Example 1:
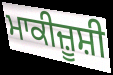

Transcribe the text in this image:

ਮਾਕੀਜ਼ੂਸ਼ੀ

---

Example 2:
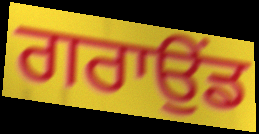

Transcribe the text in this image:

ਗਰਾਉਂਡ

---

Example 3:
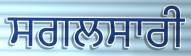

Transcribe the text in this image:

ਸਗਲਸਾਰੀ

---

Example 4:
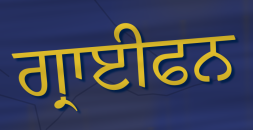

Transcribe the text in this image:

ਗ੍ਰਾਈਫਨ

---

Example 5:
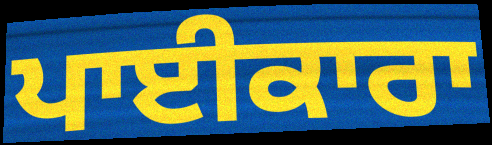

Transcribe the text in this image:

ਪਾਈਕਾਰਾ